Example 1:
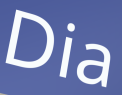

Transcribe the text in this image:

Dia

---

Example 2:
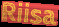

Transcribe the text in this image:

Riisa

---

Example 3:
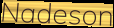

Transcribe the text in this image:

Nadeson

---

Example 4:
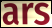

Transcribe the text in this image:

ars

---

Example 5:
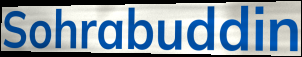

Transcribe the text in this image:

Sohrabuddin